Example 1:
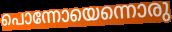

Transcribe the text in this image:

പൊന്നോയെന്നൊരു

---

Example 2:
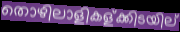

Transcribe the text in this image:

തൊഴിലാളികള്ക്കിടയില്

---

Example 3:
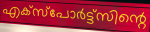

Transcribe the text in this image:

എക്സ്പോർട്ട്സിന്റെ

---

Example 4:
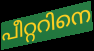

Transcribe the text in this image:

പീറ്ററിനെ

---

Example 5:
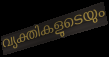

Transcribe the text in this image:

വ്യക്തികളുടെയും